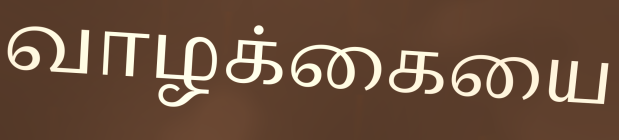
வாழக்கையை